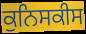
ਕੁਨਿਸਕੀਸ